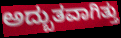
ಅದ್ಬುತವಾಗಿತ್ತು